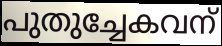
പുതുച്ചേകവന്